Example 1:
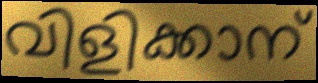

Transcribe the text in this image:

വിളിക്കാന്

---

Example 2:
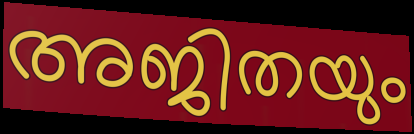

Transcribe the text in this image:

അജിതയും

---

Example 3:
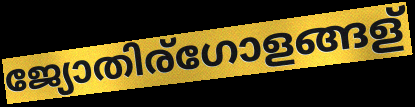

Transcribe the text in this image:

ജ്യോതിര്ഗോളങ്ങള്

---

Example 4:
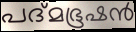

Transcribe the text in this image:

പദ്മഭൂഷൻ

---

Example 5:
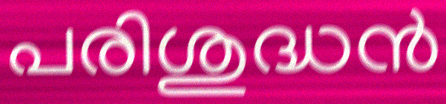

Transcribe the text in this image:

പരിശുദ്ധൻ